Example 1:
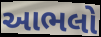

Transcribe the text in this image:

આભલો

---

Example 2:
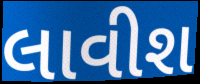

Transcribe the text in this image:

લાવીશ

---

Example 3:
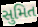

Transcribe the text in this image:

સુમિત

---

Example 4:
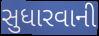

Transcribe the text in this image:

સુધારવાની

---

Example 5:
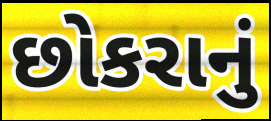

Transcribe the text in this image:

છોકરાનું